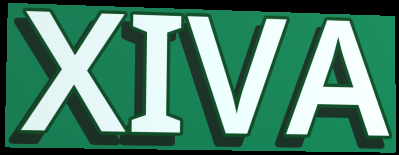
XIVA